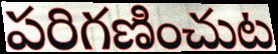
పరిగణించుట